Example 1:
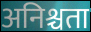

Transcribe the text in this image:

अनिश्चता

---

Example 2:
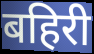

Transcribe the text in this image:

बहिरी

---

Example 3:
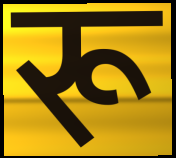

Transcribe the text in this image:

रू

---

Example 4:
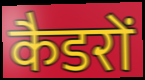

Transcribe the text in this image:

कैडरों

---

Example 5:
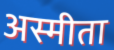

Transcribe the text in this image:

अस्मीता